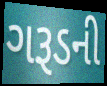
ગરૂડની